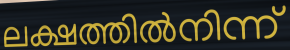
ലക്ഷത്തിൽനിന്ന്